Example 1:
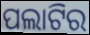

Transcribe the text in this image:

ପଲାଟିର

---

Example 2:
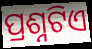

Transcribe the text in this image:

ପ୍ରଶ୍ନଟିଏ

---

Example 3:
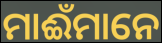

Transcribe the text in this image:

ମାଈଁମାନେ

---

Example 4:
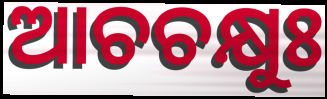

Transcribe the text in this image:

ଆଚଚକ୍ଷୁଃ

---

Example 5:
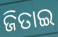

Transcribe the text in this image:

ଜିତାଇ